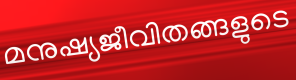
മനുഷ്യജീവിതങ്ങളുടെ